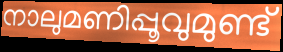
നാലുമണിപ്പൂവുമുണ്ട്